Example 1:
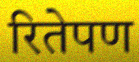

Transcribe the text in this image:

रितेपण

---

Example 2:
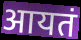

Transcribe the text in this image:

आयतं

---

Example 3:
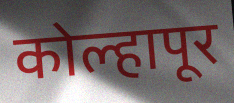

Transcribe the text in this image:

कोल्हापूर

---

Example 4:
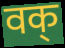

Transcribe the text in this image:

वक्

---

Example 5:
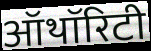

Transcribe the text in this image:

ऑथॉरिटी